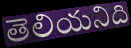
తెలియనిది